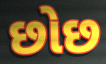
છોછ